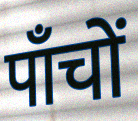
पाँचों